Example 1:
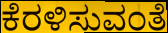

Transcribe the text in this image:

ಕೆರಳಿಸುವಂತೆ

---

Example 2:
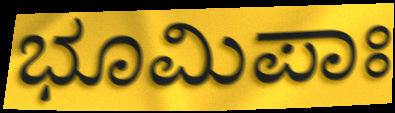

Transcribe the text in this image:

ಭೂಮಿಪಾಃ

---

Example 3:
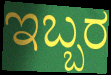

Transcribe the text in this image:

ಇಬ್ಬರ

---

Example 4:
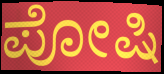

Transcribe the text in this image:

ಪೋಷಿ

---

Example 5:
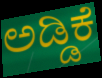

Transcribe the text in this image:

ಅಡ್ಡಿಕೆ